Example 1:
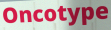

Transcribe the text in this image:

Oncotype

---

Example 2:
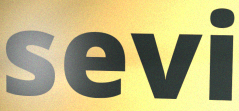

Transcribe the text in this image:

sevi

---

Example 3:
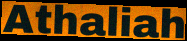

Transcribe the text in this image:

Athaliah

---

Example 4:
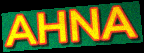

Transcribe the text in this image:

AHNA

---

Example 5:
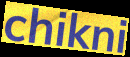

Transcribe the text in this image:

chikni